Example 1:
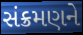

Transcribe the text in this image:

સંક્રમણને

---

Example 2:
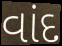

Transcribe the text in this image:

વાંદ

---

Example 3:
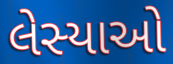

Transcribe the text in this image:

લેસ્યાઓ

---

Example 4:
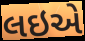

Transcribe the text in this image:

લઇએ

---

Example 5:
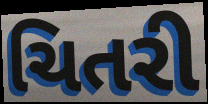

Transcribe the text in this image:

ચિતરી